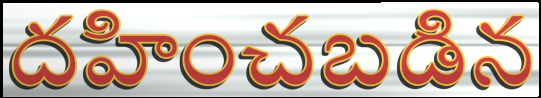
దహించబడిన